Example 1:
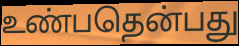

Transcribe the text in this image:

உண்பதென்பது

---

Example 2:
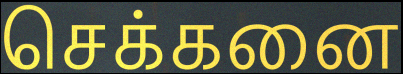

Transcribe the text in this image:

செக்கனை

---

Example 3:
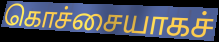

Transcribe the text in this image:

கொச்சையாகச்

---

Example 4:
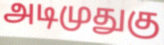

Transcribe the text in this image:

அடிமுதுகு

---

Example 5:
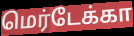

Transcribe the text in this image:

மெர்டேக்கா